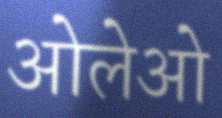
ओलेओ